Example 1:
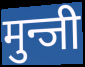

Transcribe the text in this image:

मुन्जी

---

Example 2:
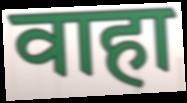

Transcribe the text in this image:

वाहा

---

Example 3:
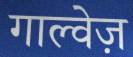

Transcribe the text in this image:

गाल्वेज़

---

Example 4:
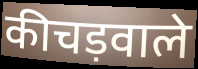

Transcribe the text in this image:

कीचड़वाले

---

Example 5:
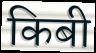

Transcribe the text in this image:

किबी